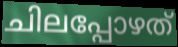
ചിലപ്പോഴത്